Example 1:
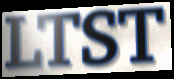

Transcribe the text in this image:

LTST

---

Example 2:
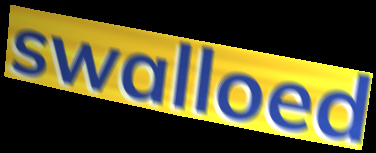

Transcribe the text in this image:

swalloed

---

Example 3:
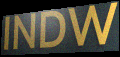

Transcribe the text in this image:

INDW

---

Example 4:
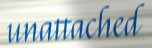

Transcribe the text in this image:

unattached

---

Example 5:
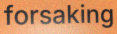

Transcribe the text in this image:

forsaking